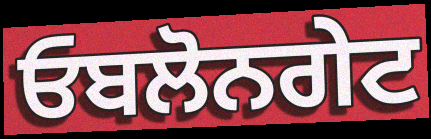
ਓਬਲੋਨਗੇਟ